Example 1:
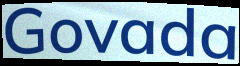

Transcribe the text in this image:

Govada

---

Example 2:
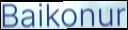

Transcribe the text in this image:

Baikonur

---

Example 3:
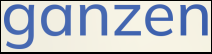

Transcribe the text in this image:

ganzen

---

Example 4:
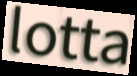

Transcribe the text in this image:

lotta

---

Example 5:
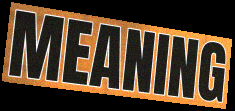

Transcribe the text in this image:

MEANING